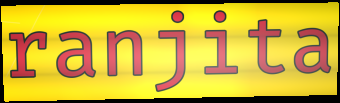
ranjita